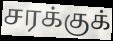
சரக்குக்